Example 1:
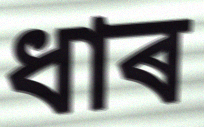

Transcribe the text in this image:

ধাৰ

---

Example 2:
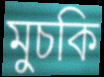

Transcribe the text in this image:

মুচকি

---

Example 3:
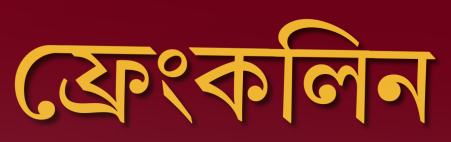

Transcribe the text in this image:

ফ্ৰেংকলিন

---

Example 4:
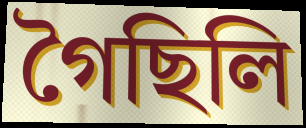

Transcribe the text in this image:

গৈছিলি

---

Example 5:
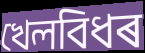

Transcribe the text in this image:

খেলবিধৰ